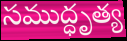
సముద్ధృత్య